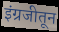
इंग्रजीतून